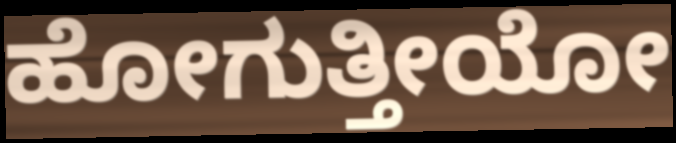
ಹೋಗುತ್ತೀಯೋ